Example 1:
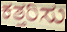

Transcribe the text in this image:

ಕತ್ತರಿಸು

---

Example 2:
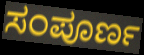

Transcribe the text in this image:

ಸಂಪೂರ್ಣ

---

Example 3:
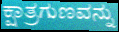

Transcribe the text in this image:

ಕ್ಷಾತ್ರಗುಣವನ್ನು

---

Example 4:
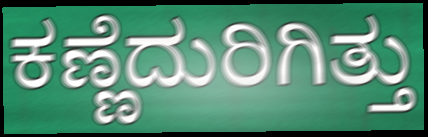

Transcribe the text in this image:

ಕಣ್ಣೆದುರಿಗಿತ್ತು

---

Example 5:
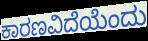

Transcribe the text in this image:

ಕಾರಣವಿದೆಯೆಂದು